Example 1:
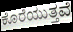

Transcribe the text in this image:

ಕೊರೆಯುತ್ತವೆ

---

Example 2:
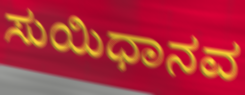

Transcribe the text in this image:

ಸುಯಿಧಾನವ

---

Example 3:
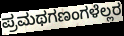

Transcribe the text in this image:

ಪ್ರಮಥಗಣಂಗಳೆಲ್ಲರ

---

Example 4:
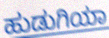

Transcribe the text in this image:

ಹುಡುಗಿಯಾ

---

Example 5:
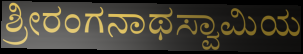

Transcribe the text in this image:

ಶ್ರೀರಂಗನಾಥಸ್ವಾಮಿಯ